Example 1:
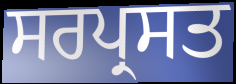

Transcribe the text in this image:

ਸਰਪ੍ਰਸਤ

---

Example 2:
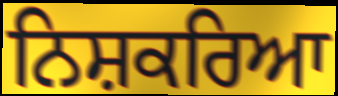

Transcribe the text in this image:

ਨਿਸ਼ਕਰਿਆ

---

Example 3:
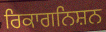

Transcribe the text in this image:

ਰਿਕਾਗਨਿਸ਼ਨ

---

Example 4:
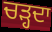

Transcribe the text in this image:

ਚੜ੍ਹਦਾ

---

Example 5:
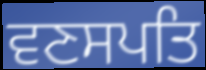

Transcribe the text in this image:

ਵਣਸਪਤਿ